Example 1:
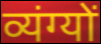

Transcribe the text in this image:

व्यंग्यों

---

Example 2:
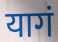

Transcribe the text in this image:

यागं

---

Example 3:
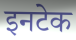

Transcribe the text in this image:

इनटेक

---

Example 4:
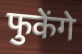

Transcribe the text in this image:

फुकेंगे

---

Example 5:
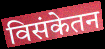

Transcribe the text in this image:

विसंकेतन